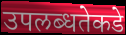
उपलब्धतेकडे